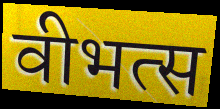
वीभत्स